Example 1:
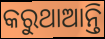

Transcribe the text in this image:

କରୁଥାଆନ୍ତି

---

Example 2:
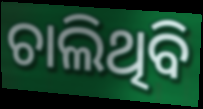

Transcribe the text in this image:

ଚାଲିଥିବି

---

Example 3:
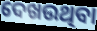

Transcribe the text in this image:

ଦେଖଉଥିବା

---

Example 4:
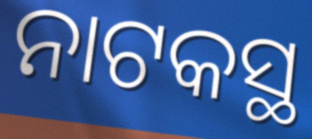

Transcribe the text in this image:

ନାଟକସ୍ଥ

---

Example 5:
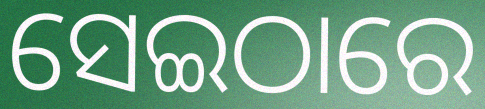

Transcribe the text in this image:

ସେଇଠାରେ